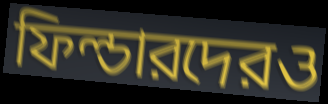
ফিল্ডারদেরও